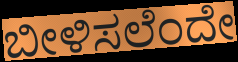
ಬೀಳಿಸಲೆಂದೇ